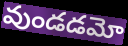
వుండడమో